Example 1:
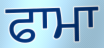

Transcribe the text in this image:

ਫਾਮਾ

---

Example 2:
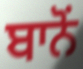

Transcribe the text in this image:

ਬਾਨੋਂ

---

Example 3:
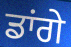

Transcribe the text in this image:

ਡਾਂਗੇ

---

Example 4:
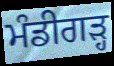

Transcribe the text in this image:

ਮੰਡੀਗੜ੍ਹ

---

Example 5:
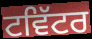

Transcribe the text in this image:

ਟਵਿੱਟਰ